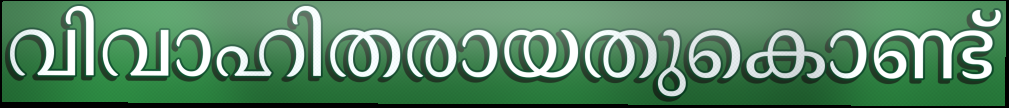
വിവാഹിതരായതുകൊണ്ട്